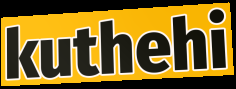
kuthehi